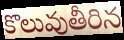
కొలువుతీరిన